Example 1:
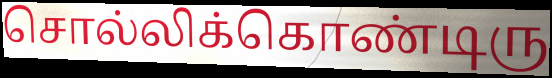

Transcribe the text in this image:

சொல்லிக்கொண்டிரு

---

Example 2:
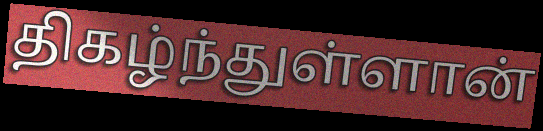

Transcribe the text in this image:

திகழ்ந்துள்ளான்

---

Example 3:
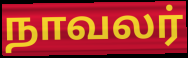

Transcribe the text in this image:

நாவலர்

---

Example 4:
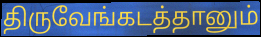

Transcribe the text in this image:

திருவேங்கடத்தானும்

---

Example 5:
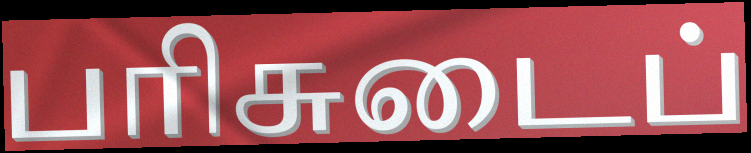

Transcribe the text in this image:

பரிசுடைப்